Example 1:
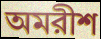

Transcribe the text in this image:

অমরীশ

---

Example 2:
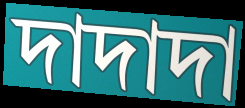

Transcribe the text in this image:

দাদাদা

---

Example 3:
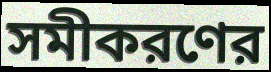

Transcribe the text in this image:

সমীকরণের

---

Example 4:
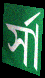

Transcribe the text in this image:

র্সা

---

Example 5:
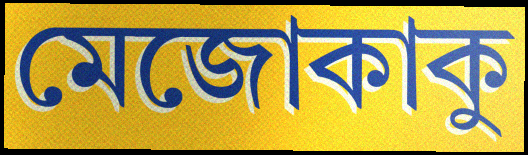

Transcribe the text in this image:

মেজোকাকু